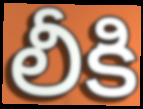
లీకి